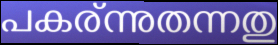
പകര്ന്നുതന്നതു